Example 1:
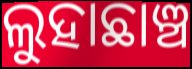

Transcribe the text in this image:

ଲୁହାଛାଞ୍ଚ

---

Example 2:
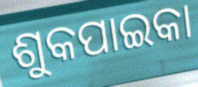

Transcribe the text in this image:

ଶୁକପାଇକା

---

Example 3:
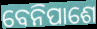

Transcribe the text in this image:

ବେନିପାଶେ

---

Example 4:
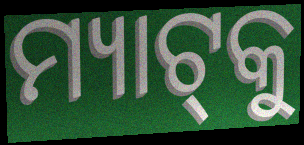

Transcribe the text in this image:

ମ୍ୟାଟ୍‌କୁ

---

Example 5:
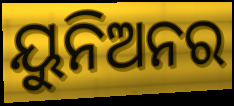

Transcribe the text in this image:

ୟୁନିଅନର